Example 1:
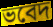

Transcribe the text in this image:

ভবেদ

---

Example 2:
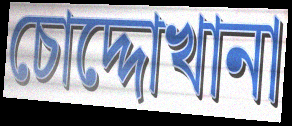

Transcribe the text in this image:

চোদ্দোখানা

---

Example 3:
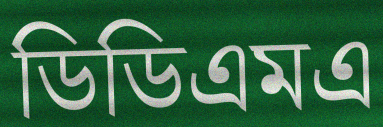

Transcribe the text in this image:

ডিডিএমএ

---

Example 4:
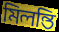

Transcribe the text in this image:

মিলন্তি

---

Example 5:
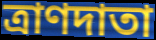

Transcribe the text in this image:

ত্রাণদাতা